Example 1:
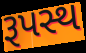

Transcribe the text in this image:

રૂપસ્થ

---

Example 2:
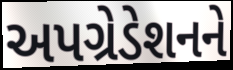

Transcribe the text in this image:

અપગ્રેડેશનને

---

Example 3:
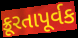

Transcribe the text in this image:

ક્રૂરતાપૂર્વક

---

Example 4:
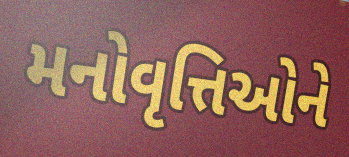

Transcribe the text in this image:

મનોવૃત્તિઓને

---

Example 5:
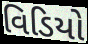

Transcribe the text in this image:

વિડિયો